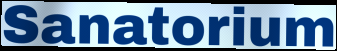
Sanatorium